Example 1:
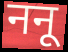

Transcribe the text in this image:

ननू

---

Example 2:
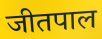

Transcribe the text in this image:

जीतपाल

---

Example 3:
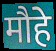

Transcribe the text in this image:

मौहे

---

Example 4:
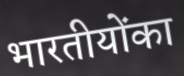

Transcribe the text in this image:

भारतीयोंका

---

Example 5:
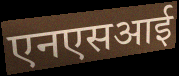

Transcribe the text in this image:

एनएसआई